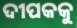
ଦୀପକକୁ